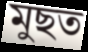
মুছত